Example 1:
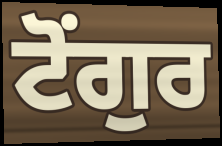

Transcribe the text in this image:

ਟੋਂਗੁਰ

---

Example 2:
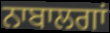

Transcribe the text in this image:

ਨਾਬਾਲਗਾਂ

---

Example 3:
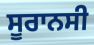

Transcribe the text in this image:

ਸੂਰਾਨਸੀ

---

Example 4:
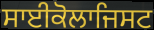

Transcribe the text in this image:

ਸਾਈਕੋਲਾਜਿਸਟ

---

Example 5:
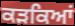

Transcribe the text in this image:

ਕੜਕਿਆਂ